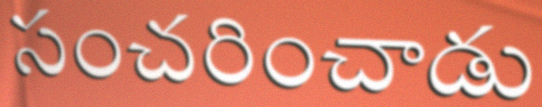
సంచరించాడు